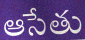
ఆసేతు